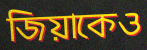
জিয়াকেও